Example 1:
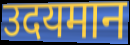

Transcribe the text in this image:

उदयमान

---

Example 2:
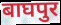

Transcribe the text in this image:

बाघपुर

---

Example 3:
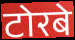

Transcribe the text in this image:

टोरबे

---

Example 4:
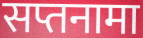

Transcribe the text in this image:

सप्तनामा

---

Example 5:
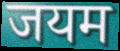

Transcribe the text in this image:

जयम